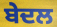
ਬੇਦਲ